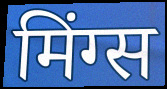
मिंग्स